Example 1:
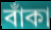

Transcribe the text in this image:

বাঁকা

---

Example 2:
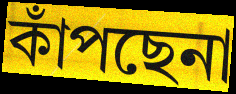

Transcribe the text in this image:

কাঁপছেনা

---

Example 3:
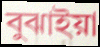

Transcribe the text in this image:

বুঝাইয়া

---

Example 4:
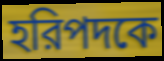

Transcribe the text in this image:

হরিপদকে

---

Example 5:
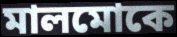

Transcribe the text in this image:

মালমোকে